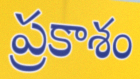
ప్రకాశం